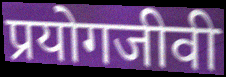
प्रयोगजीवी